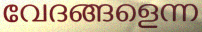
വേദങ്ങളെന്ന